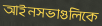
আইনসভাগুলিকে